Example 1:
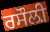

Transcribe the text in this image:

ਰਸੌਲ਼ੀ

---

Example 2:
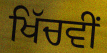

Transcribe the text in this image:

ਖਿੱਚਵੀਂ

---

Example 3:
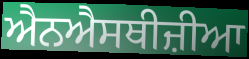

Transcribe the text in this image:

ਐਨਐਸਥੀਜ਼ੀਆ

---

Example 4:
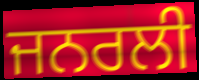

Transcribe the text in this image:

ਜਨਰਲੀ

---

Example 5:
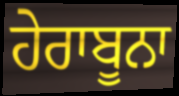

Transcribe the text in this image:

ਹੇਰਾਬੂਨਾ